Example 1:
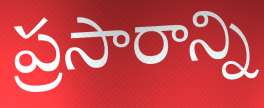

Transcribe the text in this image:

ప్రసారాన్ని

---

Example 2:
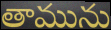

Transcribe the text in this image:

తామును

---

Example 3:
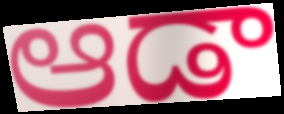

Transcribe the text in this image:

ఆడా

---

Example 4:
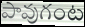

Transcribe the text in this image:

పావుగంట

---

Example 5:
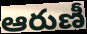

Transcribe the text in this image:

ఆరుణీ